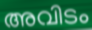
അവിടം